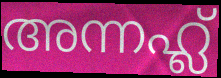
അന്നഹ്ല്